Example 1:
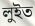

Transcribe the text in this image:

লুইত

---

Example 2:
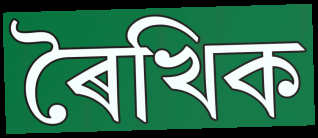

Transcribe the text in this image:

ৰৈখিক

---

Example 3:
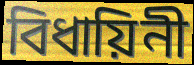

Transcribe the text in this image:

বিধায়িনী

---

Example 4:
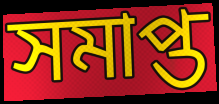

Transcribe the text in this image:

সমাপ্ত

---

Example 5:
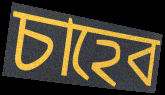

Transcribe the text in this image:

চাহেব